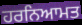
ਹਰਨਿਆਮਤ